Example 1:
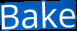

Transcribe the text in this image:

Bake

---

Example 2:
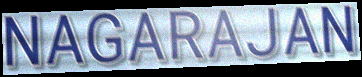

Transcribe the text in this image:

NAGARAJAN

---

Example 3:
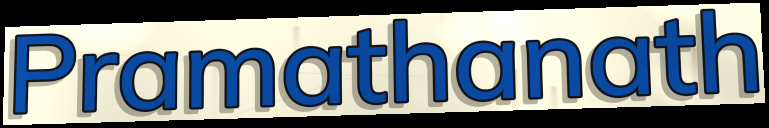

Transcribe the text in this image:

Pramathanath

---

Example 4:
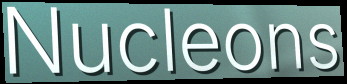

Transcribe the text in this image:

Nucleons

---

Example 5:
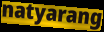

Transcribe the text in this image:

natyarang